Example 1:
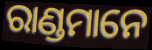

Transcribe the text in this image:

ରାଣ୍ଡମାନେ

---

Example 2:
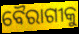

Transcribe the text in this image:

ବୈରାଗୀକୁ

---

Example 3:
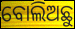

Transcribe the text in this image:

ବୋଲିଅଛୁ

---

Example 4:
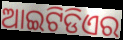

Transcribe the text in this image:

ଆଇଟିଡିଏର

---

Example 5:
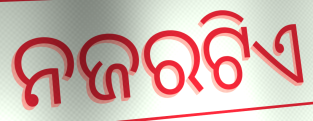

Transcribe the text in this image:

ନଜରଟିଏ